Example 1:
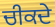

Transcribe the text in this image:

ਚੀਕਦੇ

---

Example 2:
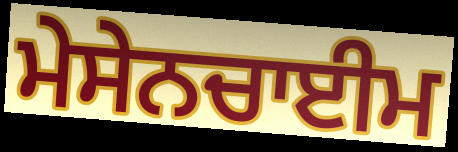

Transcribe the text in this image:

ਮੇਸੇਨਚਾਈਮ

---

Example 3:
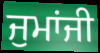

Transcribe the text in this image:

ਜੁਮਾਂਜੀ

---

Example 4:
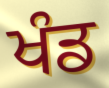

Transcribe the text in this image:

ਖੰਡ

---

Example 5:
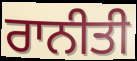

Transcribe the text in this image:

ਰਾਨੀਤੀ